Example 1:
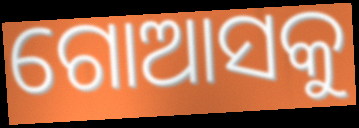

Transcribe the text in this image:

ଗୋଆସକୁ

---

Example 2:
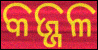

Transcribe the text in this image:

କଜ୍ଜଳ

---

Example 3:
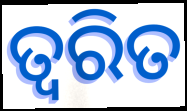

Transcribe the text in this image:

ତ୍ଵରିତ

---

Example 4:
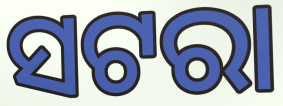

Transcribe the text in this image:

ସଟରା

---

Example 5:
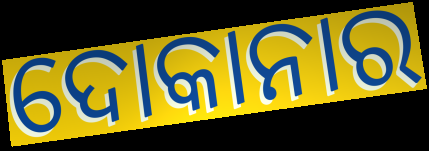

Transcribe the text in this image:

ଦୋକାନାର